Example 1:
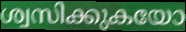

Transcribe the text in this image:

ശ്വസിക്കുകയോ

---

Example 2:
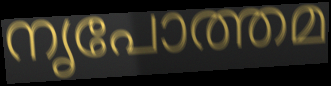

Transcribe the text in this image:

നൃപോത്തമ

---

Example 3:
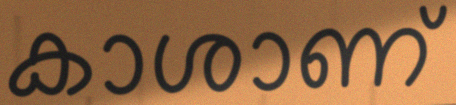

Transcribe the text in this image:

കാശാണ്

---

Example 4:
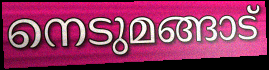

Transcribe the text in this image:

നെടുമങ്ങാട്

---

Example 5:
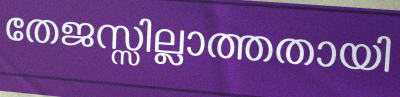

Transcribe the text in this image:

തേജസ്സില്ലാത്തതായി